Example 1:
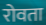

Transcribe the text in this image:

रोवता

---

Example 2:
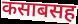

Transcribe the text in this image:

कसाबसह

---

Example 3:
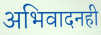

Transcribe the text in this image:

अभिवादनही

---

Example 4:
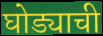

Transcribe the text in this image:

घोड्याची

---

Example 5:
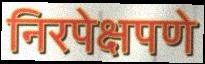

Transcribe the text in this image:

निरपेक्षपणे